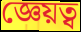
জ্ঞেয়ত্ব